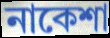
নাকেশা